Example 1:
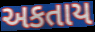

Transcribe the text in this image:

અકતાય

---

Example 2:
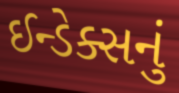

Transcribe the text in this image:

ઈન્ડેક્સનું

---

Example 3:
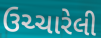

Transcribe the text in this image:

ઉચ્ચારેલી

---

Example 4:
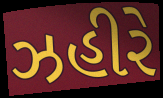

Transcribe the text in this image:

ઝહીરે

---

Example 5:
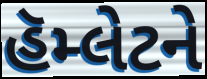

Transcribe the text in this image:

હૅમ્લેટને